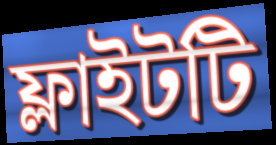
ফ্লাইটটি